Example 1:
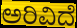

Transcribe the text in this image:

ಅರಿವಿದೆ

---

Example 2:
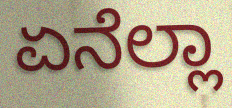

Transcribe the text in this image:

ಏನೆಲ್ಲಾ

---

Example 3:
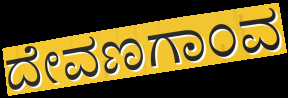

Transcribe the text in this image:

ದೇವಣಗಾಂವ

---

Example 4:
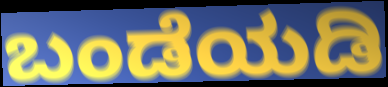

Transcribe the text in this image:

ಬಂಡೆಯಡಿ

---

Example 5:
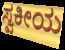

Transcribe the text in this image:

ಸ್ವಕೀಯ